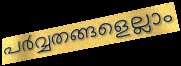
പർവ്വതങ്ങളെല്ലാം